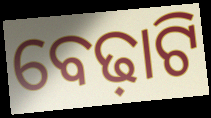
ବେଢ଼ାଟି